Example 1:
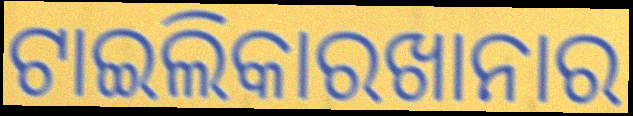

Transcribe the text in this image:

ଟାଇଲିକାରଖାନାର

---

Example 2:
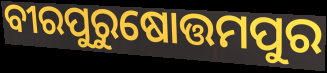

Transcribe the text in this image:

ବୀରପୁରୁଷୋତ୍ତମପୁର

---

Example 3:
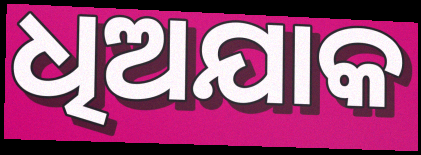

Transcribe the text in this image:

ଧିଅଯାକ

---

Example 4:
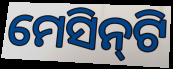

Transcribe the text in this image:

ମେସିନ୍‌ଟି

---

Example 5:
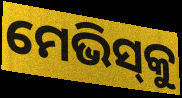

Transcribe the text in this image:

ମେଭିସ୍‌କୁ